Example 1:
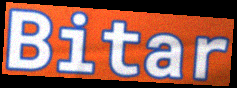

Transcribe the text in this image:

Bitar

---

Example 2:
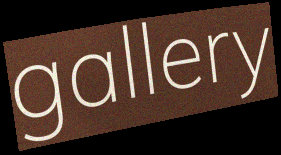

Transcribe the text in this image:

gallery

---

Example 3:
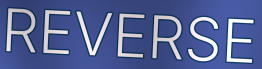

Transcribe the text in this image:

REVERSE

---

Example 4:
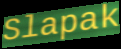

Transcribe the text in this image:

Slapak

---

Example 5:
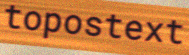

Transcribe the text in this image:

topostext